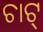
ଚାଟ୍